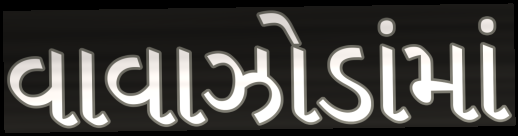
વાવાઝોડાંમાં